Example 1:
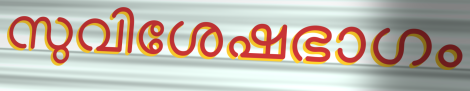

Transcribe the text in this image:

സുവിശേഷഭാഗം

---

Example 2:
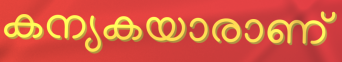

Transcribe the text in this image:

കന്യകയാരാണ്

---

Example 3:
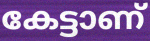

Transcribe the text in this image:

കേട്ടാണ്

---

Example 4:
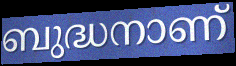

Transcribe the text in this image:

ബുദ്ധനാണ്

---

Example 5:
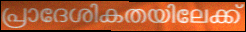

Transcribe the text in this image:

പ്രാദേശികതയിലേക്ക്